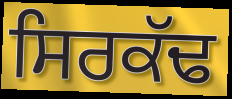
ਸਿਰਕੱਢ